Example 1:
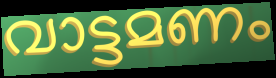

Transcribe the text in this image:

വാട്ടമണം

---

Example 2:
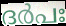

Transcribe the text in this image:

ദർപഃ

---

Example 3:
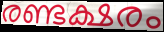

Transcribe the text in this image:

രണ്ടക്ഷരം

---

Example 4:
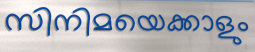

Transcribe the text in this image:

സിനിമയെക്കാളും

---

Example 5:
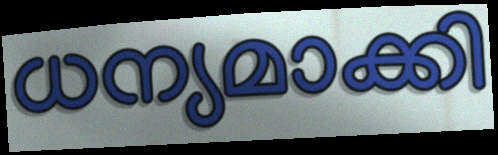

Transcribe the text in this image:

ധന്യമാക്കി